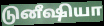
டுனீஷியா